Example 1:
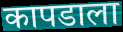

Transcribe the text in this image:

कापडाला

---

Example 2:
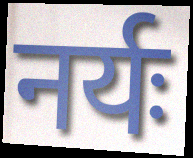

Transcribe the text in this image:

नर्यः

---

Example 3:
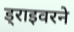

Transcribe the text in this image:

ड्राइवरने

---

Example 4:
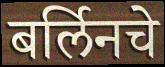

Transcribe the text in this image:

बर्लिनचे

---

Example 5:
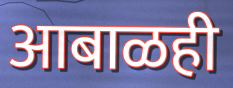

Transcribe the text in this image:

आबाळही